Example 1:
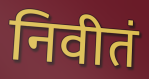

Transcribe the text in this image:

निवीतं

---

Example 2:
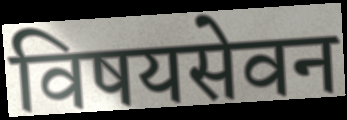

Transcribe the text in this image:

विषयसेवन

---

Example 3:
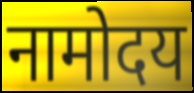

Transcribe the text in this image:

नामोदय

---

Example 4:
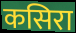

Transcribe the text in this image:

कसिरा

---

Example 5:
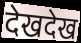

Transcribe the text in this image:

देखदेख